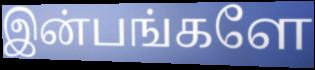
இன்பங்களே